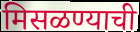
मिसळण्याची